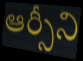
ఆర్సీని